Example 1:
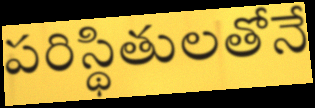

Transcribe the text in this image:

పరిస్థితులతోనే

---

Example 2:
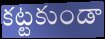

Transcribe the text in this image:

కట్టకుండా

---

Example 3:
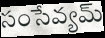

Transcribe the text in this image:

సంసేవ్యమ్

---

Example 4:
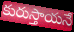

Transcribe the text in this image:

కురుస్తాయనే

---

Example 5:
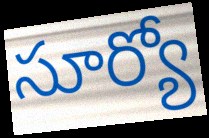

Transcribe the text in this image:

సూర్యో